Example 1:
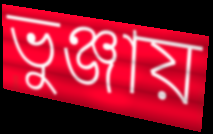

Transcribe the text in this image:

ভুঞ্জায়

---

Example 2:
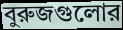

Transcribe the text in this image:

বুরুজগুলোর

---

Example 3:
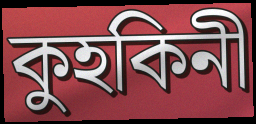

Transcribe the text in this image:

কুহকিনী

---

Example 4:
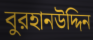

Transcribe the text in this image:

বুরহানউদ্দিন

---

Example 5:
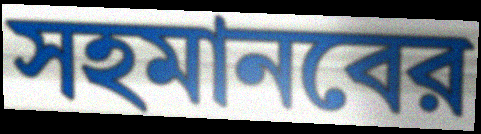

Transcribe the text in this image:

সহমানবের